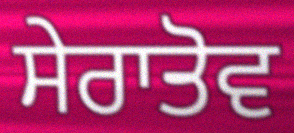
ਸੇਰਾਤੋਵ